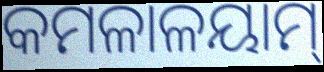
କମଳାଳୟାମ୍